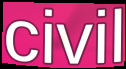
civil